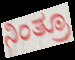
ನಿಂತ್ರೂ